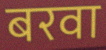
बरवा